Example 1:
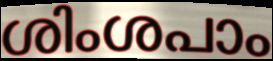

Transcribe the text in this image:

ശിംശപാം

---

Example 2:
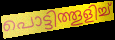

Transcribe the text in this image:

പൊട്ടിത്തൂളിച്ച്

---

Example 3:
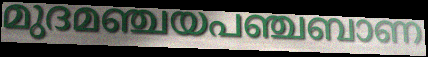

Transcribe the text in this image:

മുദമഞ്ചയപഞ്ചബാണ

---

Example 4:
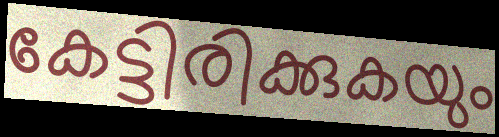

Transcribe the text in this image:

കേട്ടിരിക്കുകയും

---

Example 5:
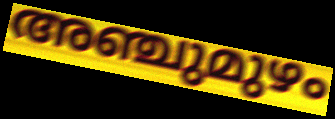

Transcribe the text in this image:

അഞ്ചുമുഴം